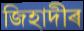
জিহাদীৰ